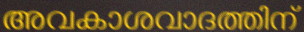
അവകാശവാദത്തിന്